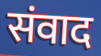
संवाद